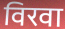
विरवा